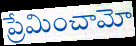
ప్రేమించామో